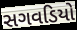
સગવડિયો